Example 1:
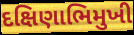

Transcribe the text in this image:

દક્ષિણાભિમુખી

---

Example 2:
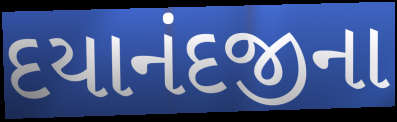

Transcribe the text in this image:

દયાનંદજીના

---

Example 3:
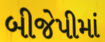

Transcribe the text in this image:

બીજેપીમાં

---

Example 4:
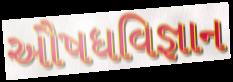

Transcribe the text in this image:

ઔષધવિજ્ઞાન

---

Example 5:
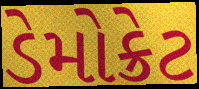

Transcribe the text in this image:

ડેમોક્રેટ